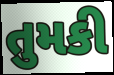
તુમકી